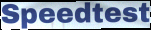
Speedtest